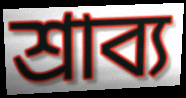
শ্ৰাব্য